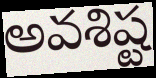
అవశిష్ట